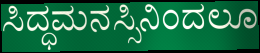
ಸಿದ್ಧಮನಸ್ಸಿನಿಂದಲೂ